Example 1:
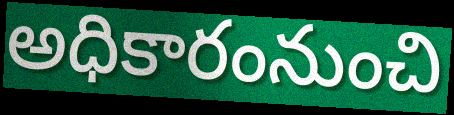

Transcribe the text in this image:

అధికారంనుంచి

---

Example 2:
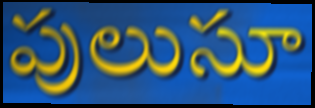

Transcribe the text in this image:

పులుసూ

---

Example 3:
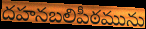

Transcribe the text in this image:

దహనబలిపీఠమును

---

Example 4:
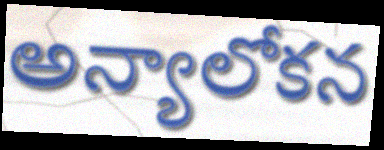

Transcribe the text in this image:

అన్యాలోకన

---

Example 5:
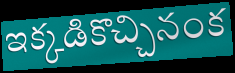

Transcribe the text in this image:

ఇక్కడికొచ్చినంక